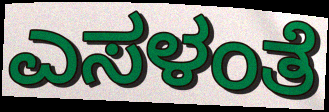
ಎಸಳಂತೆ